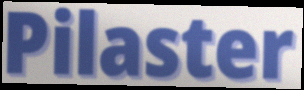
Pilaster